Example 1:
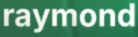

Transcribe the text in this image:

raymond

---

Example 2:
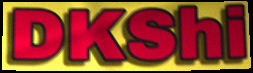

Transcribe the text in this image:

DKShi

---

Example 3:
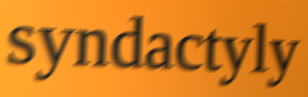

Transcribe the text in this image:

syndactyly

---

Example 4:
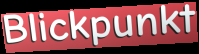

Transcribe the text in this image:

Blickpunkt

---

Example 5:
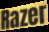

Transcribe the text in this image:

Razer